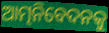
ଆତ୍ମନିବେଦନକୁ